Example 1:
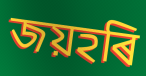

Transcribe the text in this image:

জয়হৰি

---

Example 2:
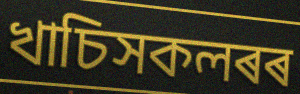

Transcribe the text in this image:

খাচিসকলৰৰ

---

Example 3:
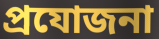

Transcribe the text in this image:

প্ৰযোজনা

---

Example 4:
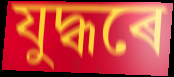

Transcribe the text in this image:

যুদ্ধৰে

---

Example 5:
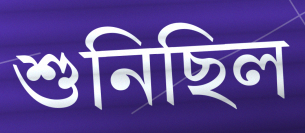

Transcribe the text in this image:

শুনিছিল